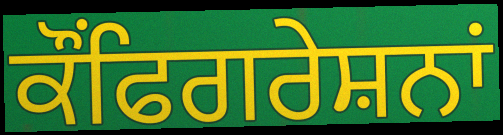
ਕੌਂਫਿਗਰੇਸ਼ਨਾਂ